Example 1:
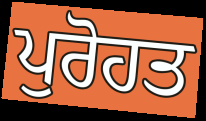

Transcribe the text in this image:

ਪੁਰੋਹਤ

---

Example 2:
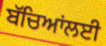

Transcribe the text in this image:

ਬੱਚਿਆਂਲਈ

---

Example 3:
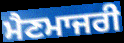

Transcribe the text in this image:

ਮੈਣਮਾਜਰੀ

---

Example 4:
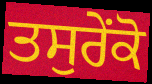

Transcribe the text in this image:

ਤਸੁਰੇਂਕੋ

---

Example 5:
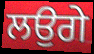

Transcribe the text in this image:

ਲਉਗੇ